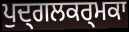
ਪੁਦ੍ਗਲਕਰ੍ਮਕਾ